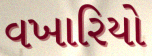
વખારિયો